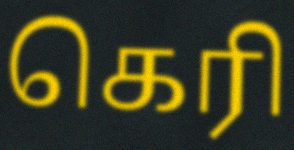
கெரி